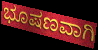
ಭೂಷಣವಾಗಿ